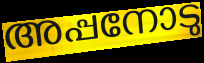
അപ്പനോടു